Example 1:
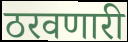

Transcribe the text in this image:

ठरवणारी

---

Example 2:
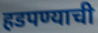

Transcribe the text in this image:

हडपण्याची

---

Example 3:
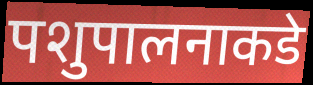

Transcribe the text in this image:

पशुपालनाकडे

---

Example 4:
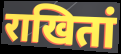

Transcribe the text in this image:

राखितां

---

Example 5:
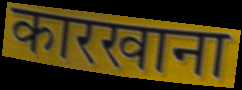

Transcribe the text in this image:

कारखाना